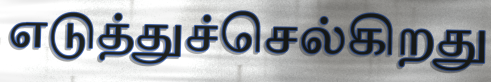
எடுத்துச்செல்கிறது